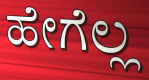
ಹೇಗೆಲ್ಲ